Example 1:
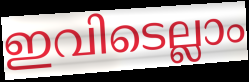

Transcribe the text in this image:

ഇവിടെല്ലാം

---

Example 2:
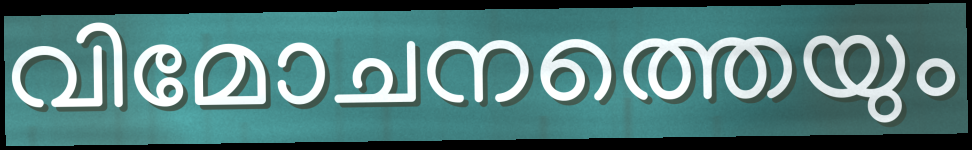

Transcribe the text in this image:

വിമോചനത്തെയും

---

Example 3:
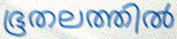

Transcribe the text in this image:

ഭൂതലത്തിൽ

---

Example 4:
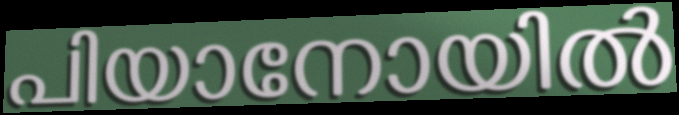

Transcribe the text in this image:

പിയാനോയിൽ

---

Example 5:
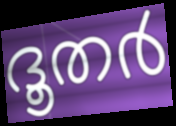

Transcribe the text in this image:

ദൂതർ